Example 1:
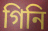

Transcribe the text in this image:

গিনি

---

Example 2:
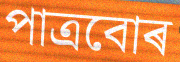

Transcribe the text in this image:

পাত্ৰবোৰ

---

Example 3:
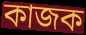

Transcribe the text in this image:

কাজক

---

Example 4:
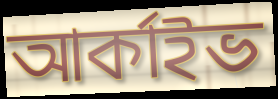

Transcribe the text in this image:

আৰ্কাইভ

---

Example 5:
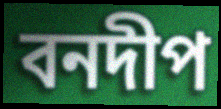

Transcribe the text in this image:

বনদীপ